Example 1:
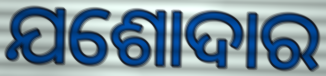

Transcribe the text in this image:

ଯଶୋଦାର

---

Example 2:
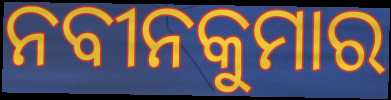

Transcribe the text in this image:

ନବୀନକୁମାର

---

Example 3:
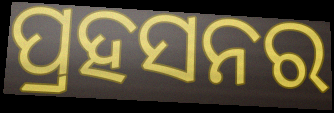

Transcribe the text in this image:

ପ୍ରହସନର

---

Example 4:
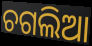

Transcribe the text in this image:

ଚଗଲିଆ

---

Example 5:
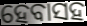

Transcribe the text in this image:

ହେବାସହ